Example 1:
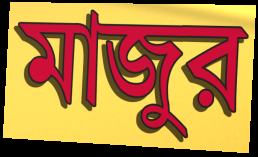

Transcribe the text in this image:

মাজুর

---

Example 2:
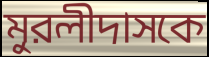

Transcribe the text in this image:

মুরলীদাসকে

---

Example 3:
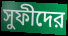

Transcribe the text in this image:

সুফীদের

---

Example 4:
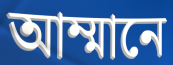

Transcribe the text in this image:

আম্মানে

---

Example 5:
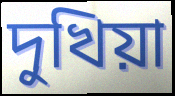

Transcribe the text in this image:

দুখিয়া